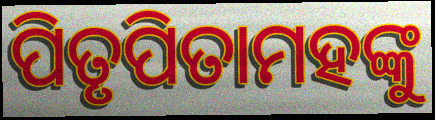
ପିତୃପିତାମହଙ୍କୁ